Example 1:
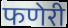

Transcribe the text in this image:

फणेरी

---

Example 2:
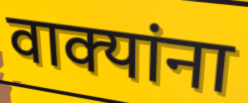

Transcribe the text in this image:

वाक्यांना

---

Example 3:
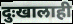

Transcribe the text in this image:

दुःखालाही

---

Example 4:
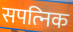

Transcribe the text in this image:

सपत्‍निक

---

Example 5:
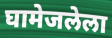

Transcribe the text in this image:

घामेजलेला